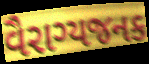
વૈરાગ્યજનક